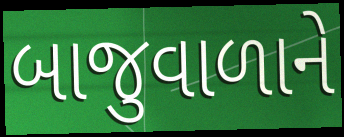
બાજુવાળાને